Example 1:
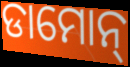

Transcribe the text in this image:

ଡାମୋନ୍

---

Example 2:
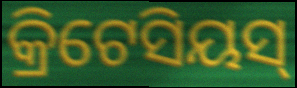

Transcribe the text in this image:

କ୍ରିଟେସିୟସ୍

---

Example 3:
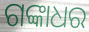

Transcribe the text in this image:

ଗଙ୍କାଧର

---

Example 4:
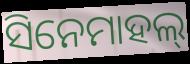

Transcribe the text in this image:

ସିନେମାହଲ୍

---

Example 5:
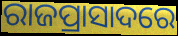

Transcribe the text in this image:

ରାଜପ୍ରାସାଦରେ